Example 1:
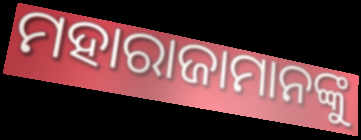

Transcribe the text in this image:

ମହାରାଜାମାନଙ୍କୁ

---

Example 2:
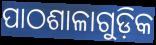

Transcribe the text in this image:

ପାଠଶାଳାଗୁଡ଼ିକ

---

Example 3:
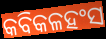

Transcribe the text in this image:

କବିକଳହଂସ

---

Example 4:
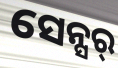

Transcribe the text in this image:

ସେନ୍ସର୍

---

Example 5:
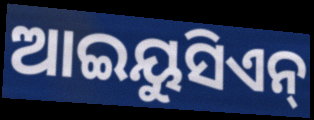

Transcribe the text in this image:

ଆଇୟୁସିଏନ୍